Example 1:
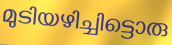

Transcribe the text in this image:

മുടിയഴിച്ചിട്ടൊരു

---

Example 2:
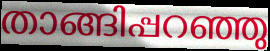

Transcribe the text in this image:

താങ്ങിപ്പറഞ്ഞു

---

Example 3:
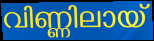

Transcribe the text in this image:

വിണ്ണിലായ്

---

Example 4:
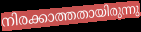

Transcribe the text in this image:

നിരക്കാത്തതായിരുന്നു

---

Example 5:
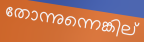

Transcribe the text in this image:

തോന്നുന്നെങ്കില്